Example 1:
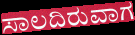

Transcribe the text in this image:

ಸಾಲದಿರುವಾಗ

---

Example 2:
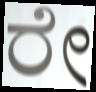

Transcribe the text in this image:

ರೇ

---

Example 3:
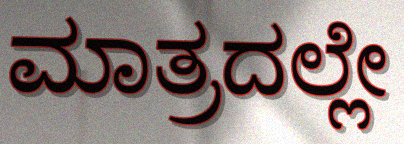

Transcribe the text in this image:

ಮಾತ್ರದಲ್ಲೇ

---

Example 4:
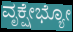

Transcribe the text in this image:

ವೃಕ್ಷೇಭ್ಯೋ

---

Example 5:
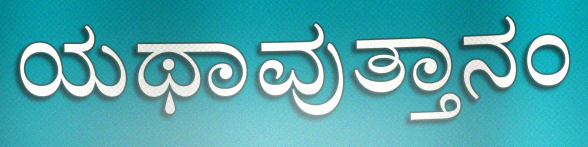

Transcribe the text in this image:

ಯಥಾವುತ್ತಾನಂ